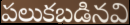
పలుకబడినవి